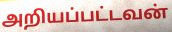
அறியப்பட்டவன்